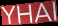
YHAI